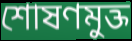
শোষণমুক্ত